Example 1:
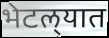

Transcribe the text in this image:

भेटल्यात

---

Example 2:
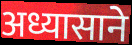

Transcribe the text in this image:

अध्यासाने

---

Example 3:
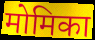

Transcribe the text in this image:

मोमिका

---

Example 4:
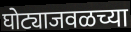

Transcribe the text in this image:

घोट्याजवळच्या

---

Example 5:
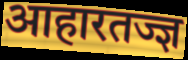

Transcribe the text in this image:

आहारतज्ज्ञ